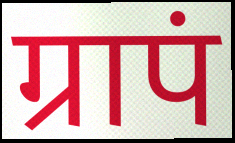
ग्रापं